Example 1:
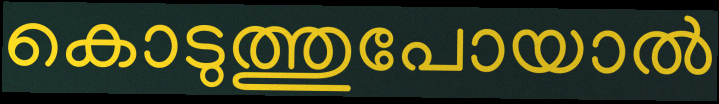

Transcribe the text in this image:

കൊടുത്തുപോയാൽ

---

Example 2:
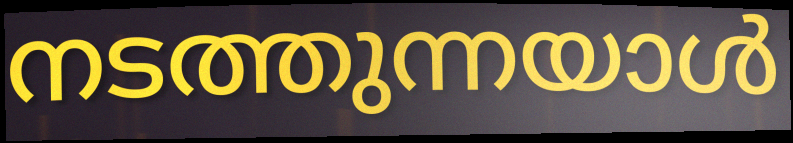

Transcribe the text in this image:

നടത്തുന്നയാൾ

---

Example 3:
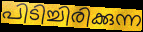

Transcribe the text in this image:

പിടിച്ചിരിക്കുന്ന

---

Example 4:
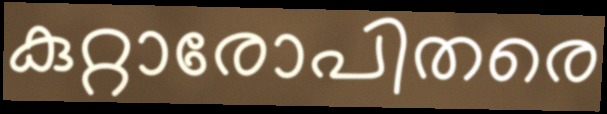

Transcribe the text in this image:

കുറ്റാരോപിതരെ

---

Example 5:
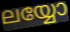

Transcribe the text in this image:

ലയ്യോ